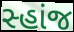
સ્હાંજ